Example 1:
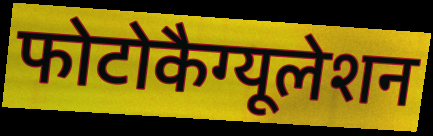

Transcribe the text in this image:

फोटोकैग्यूलेशन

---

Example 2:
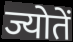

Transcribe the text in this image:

ज्योतें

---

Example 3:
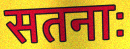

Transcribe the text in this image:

सतनाः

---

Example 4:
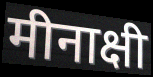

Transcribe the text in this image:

मीनाक्षी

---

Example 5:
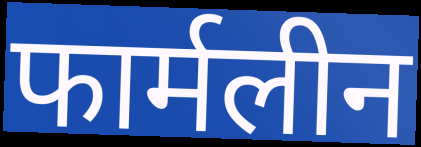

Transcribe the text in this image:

फार्मलीन